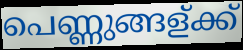
പെണ്ണുങ്ങള്ക്ക്